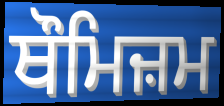
ਥੌਮਿਜ਼ਮ